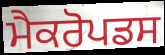
ਮੈਕਰੋਪਡਸ